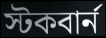
স্টকবার্ন